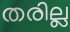
തരില്ല